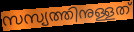
സസ്യത്തിനുള്ളത്